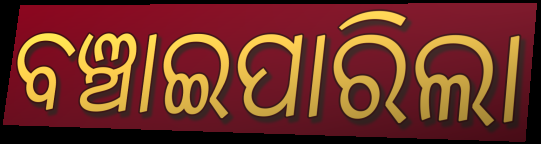
ବଞ୍ଚାଇପାରିଲା